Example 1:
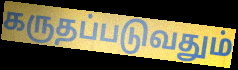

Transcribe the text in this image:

கருதப்படுவதும்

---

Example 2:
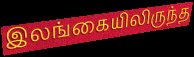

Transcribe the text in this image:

இலங்கையிலிருந்த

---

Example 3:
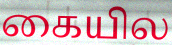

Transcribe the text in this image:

கையில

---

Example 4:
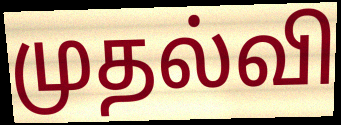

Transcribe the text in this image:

முதல்வி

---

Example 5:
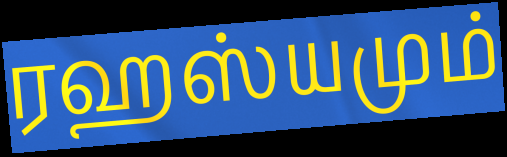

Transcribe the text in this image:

ரஹஸ்யமும்